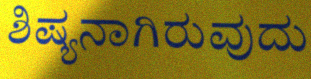
ಶಿಷ್ಯನಾಗಿರುವುದು